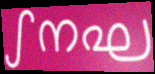
ഽനഘ